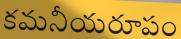
కమనీయరూపం